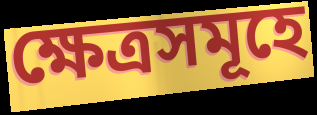
ক্ষেত্ৰসমূহে